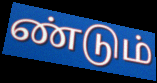
ண்டும்